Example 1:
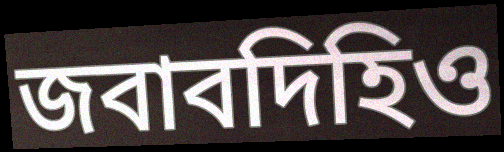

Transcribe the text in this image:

জবাবদিহিও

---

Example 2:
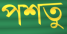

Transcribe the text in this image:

পশতু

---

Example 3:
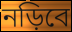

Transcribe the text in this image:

নড়িবে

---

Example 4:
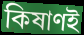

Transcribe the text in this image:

কিষাণই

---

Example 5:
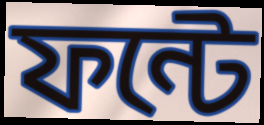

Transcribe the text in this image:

ফন্টে